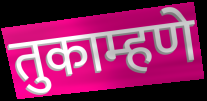
तुकाम्हणे